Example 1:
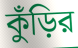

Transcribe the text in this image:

কুঁড়ির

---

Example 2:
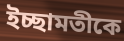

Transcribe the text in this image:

ইচ্ছামতীকে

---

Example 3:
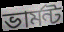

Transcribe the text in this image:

ভার্মন্ট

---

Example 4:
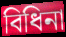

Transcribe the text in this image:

বিধিনা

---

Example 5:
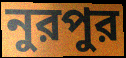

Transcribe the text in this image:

নুরপুর